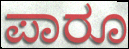
ಪಾರೂ